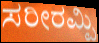
ಸರೀರಮ್ಪಿ